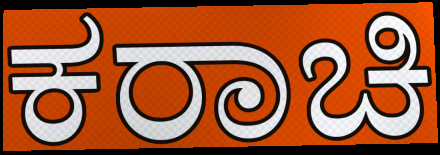
ಕರಾಚಿ